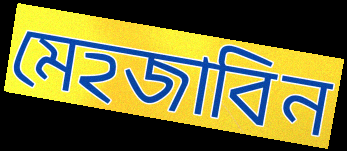
মেহজাবিন